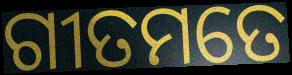
ଗୀତମତେ